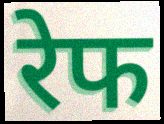
रेफ